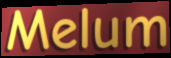
Melum